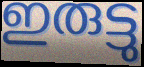
ഇരുട്ടു